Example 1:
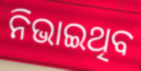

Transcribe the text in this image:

ନିଭାଇଥିବ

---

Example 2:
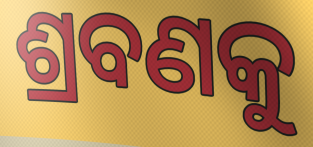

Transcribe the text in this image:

ଶ୍ରବଣକୁ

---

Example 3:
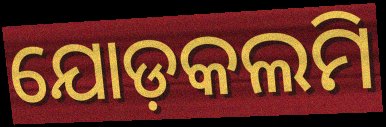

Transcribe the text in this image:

ଯୋଡ଼କଲମି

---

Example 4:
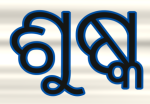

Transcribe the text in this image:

ଶୁଷ୍କ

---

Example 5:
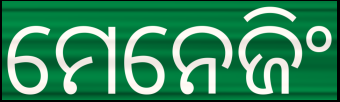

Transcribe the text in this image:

ମେନେଜିଂ